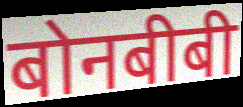
बोनबीबी